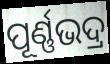
ପୂର୍ଣ୍ଣଭଦ୍ର